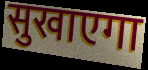
सुखाएगा